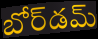
బోర్‌డమ్